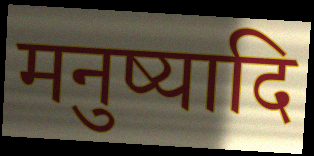
मनुष्यादि